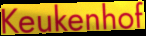
Keukenhof